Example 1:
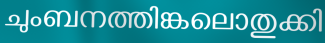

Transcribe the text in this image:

ചുംബനത്തിങ്കലൊതുക്കി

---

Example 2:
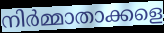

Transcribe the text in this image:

നിർമ്മാതാക്കളെ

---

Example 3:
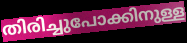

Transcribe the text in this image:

തിരിച്ചുപോക്കിനുള്ള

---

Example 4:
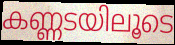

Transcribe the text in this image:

കണ്ണടയിലൂടെ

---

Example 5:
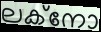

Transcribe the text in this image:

ലക്നോ